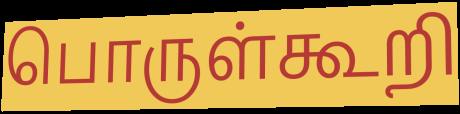
பொருள்கூறி